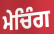
ਮੇਚਿੰਗ